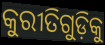
କୁରୀତିଗୁଡ଼ିକୁ